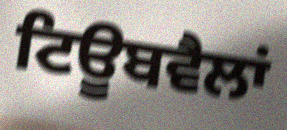
ਟਿਊਬਵੈਲਾਂ